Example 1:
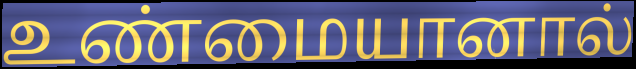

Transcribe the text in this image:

உண்மையானால்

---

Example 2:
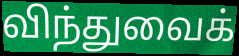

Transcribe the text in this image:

விந்துவைக்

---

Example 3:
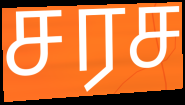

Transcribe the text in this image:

சரச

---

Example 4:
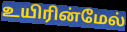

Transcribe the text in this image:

உயிரின்மேல்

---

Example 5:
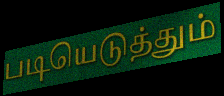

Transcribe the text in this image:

படியெடுத்தும்